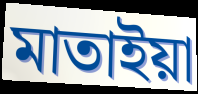
মাতাইয়া